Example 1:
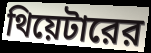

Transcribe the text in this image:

থিয়েটারের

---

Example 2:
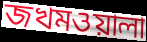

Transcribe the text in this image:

জখমওয়ালা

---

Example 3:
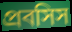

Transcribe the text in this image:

প্রবসিস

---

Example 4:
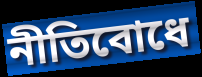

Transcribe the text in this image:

নীতিবোধে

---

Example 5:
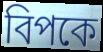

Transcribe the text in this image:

বিপকে